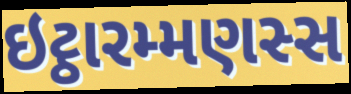
ઇટ્ઠારમ્મણસ્સ